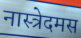
नास्त्रेदमस